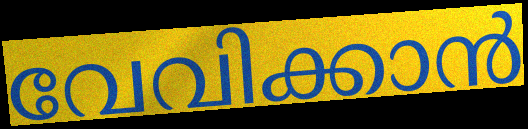
വേവിക്കാൻ